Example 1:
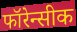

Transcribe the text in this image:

फॉरेन्सीक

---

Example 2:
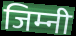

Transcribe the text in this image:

जिम्नी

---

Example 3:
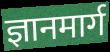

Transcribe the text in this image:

ज्ञानमार्ग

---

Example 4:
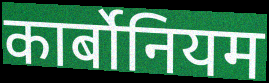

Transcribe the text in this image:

कार्बोनियम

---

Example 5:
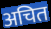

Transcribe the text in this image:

अचित